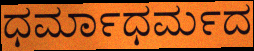
ಧರ್ಮಾಧರ್ಮದ